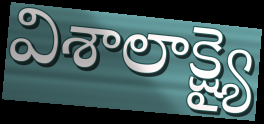
విశాలాక్ష్యై